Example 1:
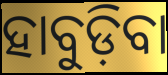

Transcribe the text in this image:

ହାବୁଡ଼ିବା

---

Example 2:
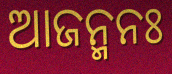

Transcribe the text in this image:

ଆଜନ୍ମନଃ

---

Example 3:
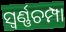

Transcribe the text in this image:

ସ୍ୱର୍ଣ୍ଣଚମ୍ପା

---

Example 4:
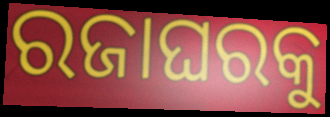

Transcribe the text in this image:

ରଜାଘରକୁ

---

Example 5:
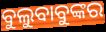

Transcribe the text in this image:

ବୁଲୁବାବୁଙ୍କର